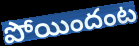
పోయిందంట